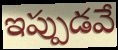
ఇప్పుడవే